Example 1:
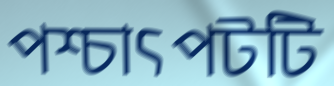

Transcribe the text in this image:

পশ্চাৎপটটি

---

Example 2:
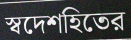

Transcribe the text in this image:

স্বদেশহিতের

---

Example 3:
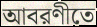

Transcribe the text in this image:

আবরণীতে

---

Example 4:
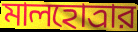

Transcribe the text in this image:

মালহোত্রার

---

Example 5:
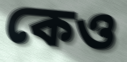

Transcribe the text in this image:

কেও